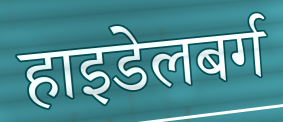
हाइडेलबर्ग